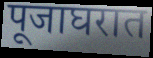
पूजाघरात